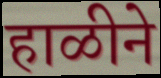
हाळीने